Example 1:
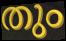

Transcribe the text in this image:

തും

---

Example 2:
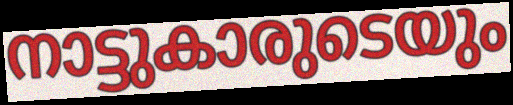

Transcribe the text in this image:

നാട്ടുകാരുടെയും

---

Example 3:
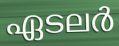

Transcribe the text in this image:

ഏടലർ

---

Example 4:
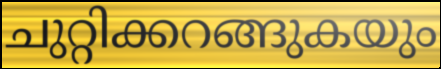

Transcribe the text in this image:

ചുറ്റിക്കറങ്ങുകയും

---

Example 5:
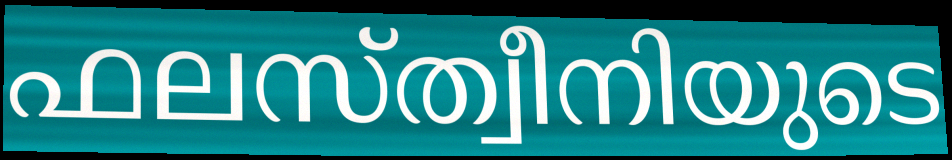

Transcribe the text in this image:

ഫലസ്ത്വീനിയുടെ